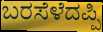
ಬರಸೆಳೆದಪ್ಪಿ